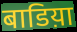
बाडिय़ा